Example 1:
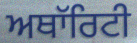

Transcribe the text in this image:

ਅਥਾੱਰਿਟੀ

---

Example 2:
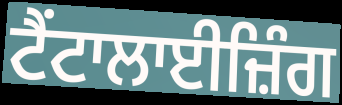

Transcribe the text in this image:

ਟੈਂਟਾਲਾਈਜ਼ਿੰਗ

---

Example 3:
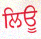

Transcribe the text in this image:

ਲਿਊ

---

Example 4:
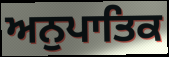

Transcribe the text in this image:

ਅਨੁਪਾਤਿਕ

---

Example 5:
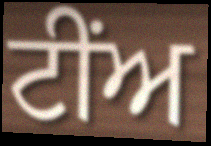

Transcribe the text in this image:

ਟੀਂਅ